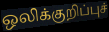
ஒலிக்குறிப்புச்